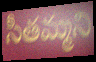
సీతమ్మని